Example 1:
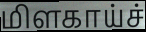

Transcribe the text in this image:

மிளகாய்ச்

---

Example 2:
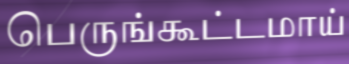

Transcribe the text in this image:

பெருங்கூட்டமாய்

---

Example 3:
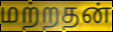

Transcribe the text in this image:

மற்றதன்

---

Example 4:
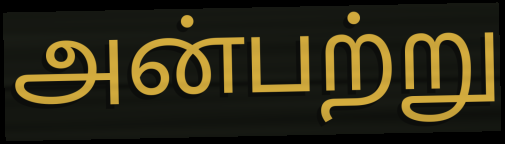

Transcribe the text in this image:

அன்பற்று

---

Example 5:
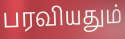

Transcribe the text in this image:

பரவியதும்